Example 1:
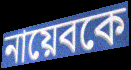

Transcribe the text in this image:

নায়েবকে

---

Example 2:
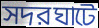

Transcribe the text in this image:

সদরঘাটে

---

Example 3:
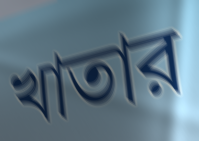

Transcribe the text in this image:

খাতার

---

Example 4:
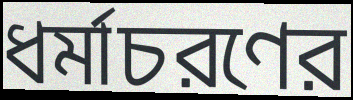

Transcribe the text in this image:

ধর্মাচরণের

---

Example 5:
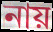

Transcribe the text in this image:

নায়